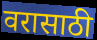
वरासाठी